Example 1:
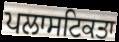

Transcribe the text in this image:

ਪਲਾਸਟਿਕਤਾ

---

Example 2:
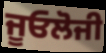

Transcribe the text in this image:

ਜੂਓਲੋਜੀ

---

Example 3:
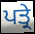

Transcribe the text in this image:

ਪਤ੍ਰੇ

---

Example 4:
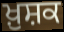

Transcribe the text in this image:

ਖ਼ੁਸ਼ਕ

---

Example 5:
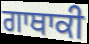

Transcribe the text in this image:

ਗਾਥਾਕੀ